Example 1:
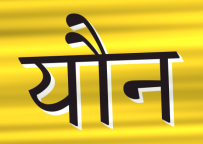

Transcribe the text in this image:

यौन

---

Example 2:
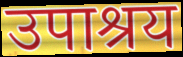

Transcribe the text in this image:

उपाश्रय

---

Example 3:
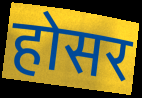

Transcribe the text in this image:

होसर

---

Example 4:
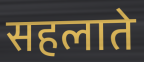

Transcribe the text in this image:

सहलाते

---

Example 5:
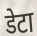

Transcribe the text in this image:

डेटा